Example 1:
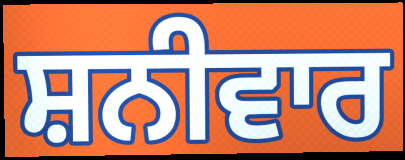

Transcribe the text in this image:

ਸ਼ਨੀਵਾਰ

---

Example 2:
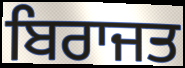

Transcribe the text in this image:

ਬਿਰਾਜਤ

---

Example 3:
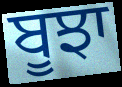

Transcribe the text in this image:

ਬੂਝਾ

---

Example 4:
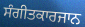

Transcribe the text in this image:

ਸੰਗੀਤਕਾਰਜਾਨ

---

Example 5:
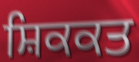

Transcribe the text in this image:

ਸ਼ਿਕਕਤ